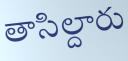
తాసిల్దారు